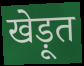
खेड़ूत